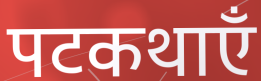
पटकथाएँ